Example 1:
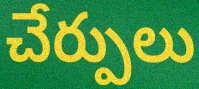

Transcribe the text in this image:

చేర్పులు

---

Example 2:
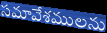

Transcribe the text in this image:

సమావేశములను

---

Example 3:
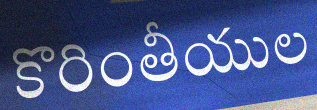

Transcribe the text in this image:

కొరింతీయుల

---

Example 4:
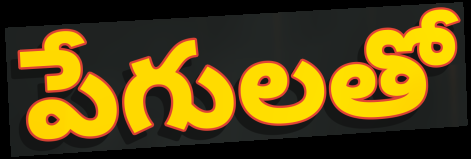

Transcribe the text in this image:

పేగులతో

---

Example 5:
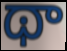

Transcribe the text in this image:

థా